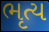
ભૃત્ય